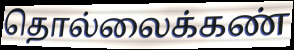
தொல்லைக்கண்